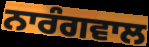
ਨਾਰੰਗਵਾਲ